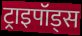
ट्राइपॉड्स